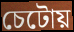
চেটোয়